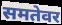
समतेवर